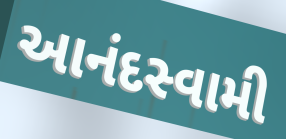
આનંદસ્વામી